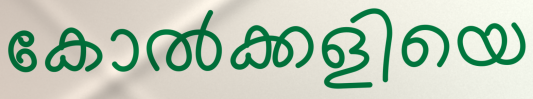
കോൽക്കളിയെ